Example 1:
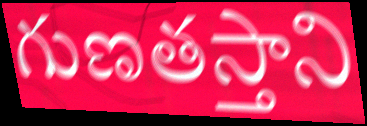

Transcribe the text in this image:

గుణతస్తాని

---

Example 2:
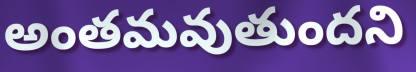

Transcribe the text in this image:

అంతమవుతుందని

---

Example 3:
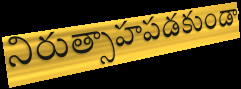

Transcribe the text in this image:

నిరుత్సాహపడకుండా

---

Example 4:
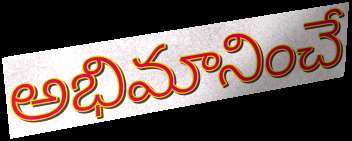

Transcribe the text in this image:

అభిమానించే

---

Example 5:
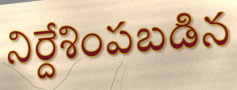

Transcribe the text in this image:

నిర్దేశింపబడిన